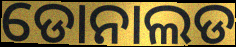
ଡୋନାଲଡ